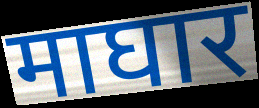
माघार